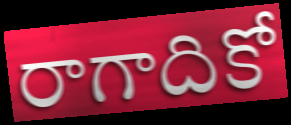
రాగాదికో